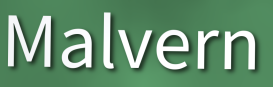
Malvern